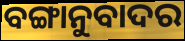
ବଙ୍ଗାନୁବାଦର